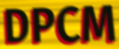
DPCM